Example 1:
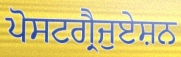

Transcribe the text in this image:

ਪੋਸਟਗ੍ਰੈਜੁਏਸ਼ਨ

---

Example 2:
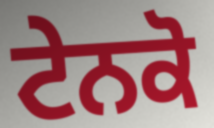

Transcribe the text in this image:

ਟੇਨਕੋ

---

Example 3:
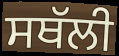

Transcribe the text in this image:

ਸਥੱਲੀ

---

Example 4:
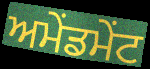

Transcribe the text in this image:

ਅਮੇਂਡਮੇਂਟ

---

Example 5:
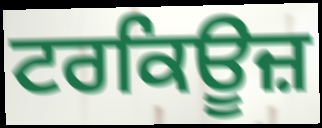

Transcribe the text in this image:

ਟਰਕਿਊਜ਼